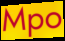
Mpo